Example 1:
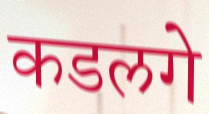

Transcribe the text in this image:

कडलगे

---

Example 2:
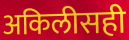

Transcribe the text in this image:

अकिलीसही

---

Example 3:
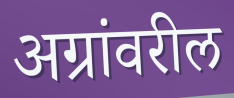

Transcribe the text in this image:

अग्रांवरील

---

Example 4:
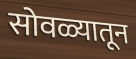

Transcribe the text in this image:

सोवळ्यातून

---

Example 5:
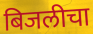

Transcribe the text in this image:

बिजलीचा